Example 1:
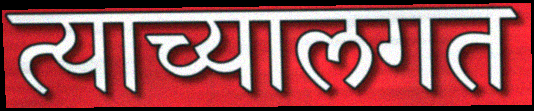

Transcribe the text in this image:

त्याच्यालगत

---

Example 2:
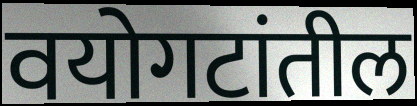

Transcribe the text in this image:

वयोगटांतील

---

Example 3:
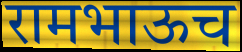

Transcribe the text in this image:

रामभाऊच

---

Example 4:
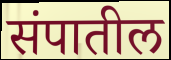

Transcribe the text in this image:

संपातील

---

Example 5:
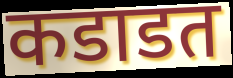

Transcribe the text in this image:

कडाडत